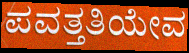
ಪವತ್ತತಿಯೇವ